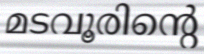
മടവൂരിന്റെ